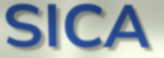
SICA